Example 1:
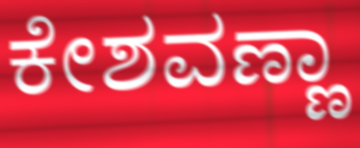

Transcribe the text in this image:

ಕೇಶವಣ್ಣಾ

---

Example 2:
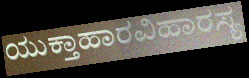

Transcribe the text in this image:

ಯುಕ್ತಾಹಾರವಿಹಾರಸ್ಯ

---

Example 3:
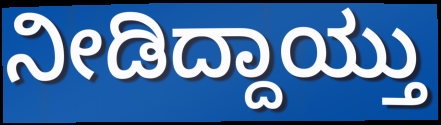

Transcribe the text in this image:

ನೀಡಿದ್ದಾಯ್ತು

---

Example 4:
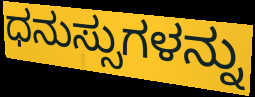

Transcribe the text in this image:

ಧನುಸ್ಸುಗಳನ್ನು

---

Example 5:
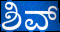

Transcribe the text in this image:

ಶಿವ್